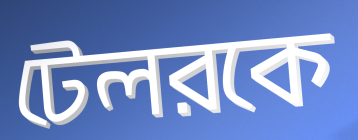
টেলরকে